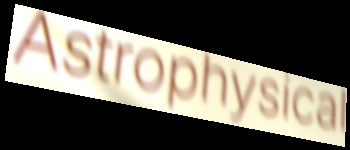
Astrophysical